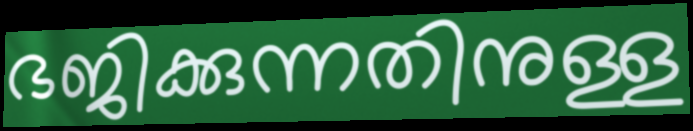
ഭജിക്കുന്നതിനുള്ള